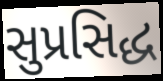
સુપ્રસિદ્ધ